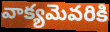
వాక్యమెవరికి